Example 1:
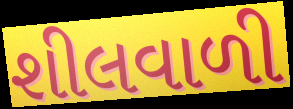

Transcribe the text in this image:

શીલવાળી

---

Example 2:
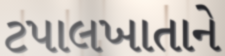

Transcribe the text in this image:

ટપાલખાતાને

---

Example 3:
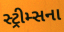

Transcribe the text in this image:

સ્ટ્રીમ્સના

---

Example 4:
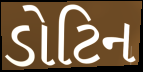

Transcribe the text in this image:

ડોટિન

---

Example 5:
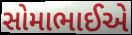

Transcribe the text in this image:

સોમાભાઈએ